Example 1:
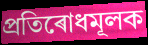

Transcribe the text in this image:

প্ৰতিৰোধমূলক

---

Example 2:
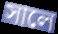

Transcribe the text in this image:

সালে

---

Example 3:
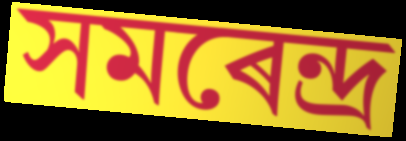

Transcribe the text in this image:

সমৰেন্দ্ৰ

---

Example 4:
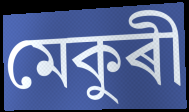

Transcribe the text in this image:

মেকুৰী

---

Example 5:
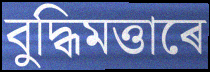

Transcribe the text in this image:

বুদ্ধিমত্তাৰে